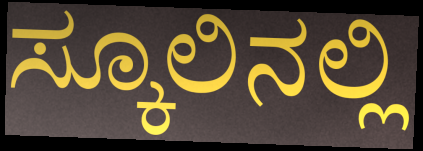
ಸ್ಕೂಲಿನಲ್ಲಿ